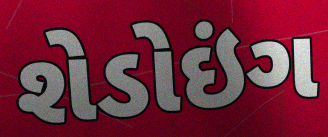
શેડોઇંગ